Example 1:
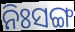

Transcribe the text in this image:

ନିଃସଙ୍ଗ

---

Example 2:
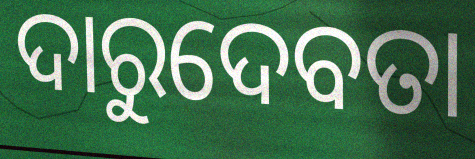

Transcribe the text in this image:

ଦାରୁଦେବତା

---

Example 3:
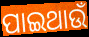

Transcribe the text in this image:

ପାଇଥାଉଁ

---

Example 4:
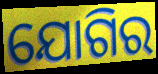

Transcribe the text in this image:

ଯୋଗିର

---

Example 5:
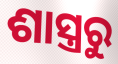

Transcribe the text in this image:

ଶାସ୍ତ୍ରରୁ